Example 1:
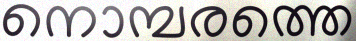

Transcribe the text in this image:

നൊമ്പരത്തെ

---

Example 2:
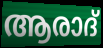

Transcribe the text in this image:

ആരാദ്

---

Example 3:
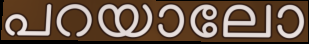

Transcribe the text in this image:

പറയാലോ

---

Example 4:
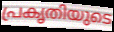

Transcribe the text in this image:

പ്രകൃതിയുടെ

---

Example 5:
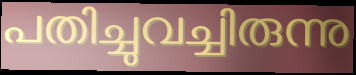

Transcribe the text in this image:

പതിച്ചുവച്ചിരുന്നു